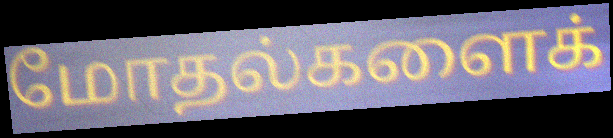
மோதல்களைக்